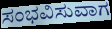
ಸಂಭವಿಸುವಾಗ